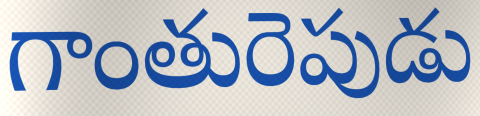
గాంతురెపుడు